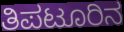
ತಿಪಟೂರಿನ